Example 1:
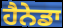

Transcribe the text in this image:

ਹੈਨੇਡਾ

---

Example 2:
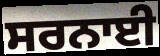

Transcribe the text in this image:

ਸਰਨਾਈ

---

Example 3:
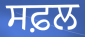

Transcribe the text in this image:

ਸਫ਼ਲ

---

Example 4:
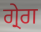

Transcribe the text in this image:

ਗ੍ਰੇਗ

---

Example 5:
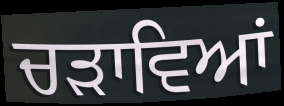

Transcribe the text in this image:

ਚੜਾਵਿਆਂ